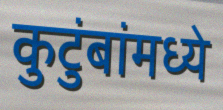
कुटुंबांमध्ये